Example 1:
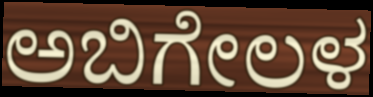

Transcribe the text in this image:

ಅಬಿಗೇಲಳ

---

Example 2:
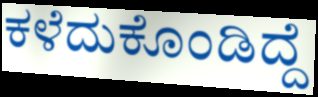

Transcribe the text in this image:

ಕಳೆದುಕೊಂಡಿದ್ದೆ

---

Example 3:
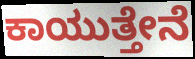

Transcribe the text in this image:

ಕಾಯುತ್ತೇನೆ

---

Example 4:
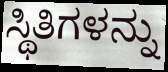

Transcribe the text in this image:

ಸ್ಥಿತಿಗಳನ್ನು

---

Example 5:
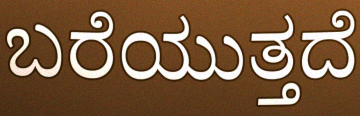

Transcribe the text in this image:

ಬರೆಯುತ್ತದೆ